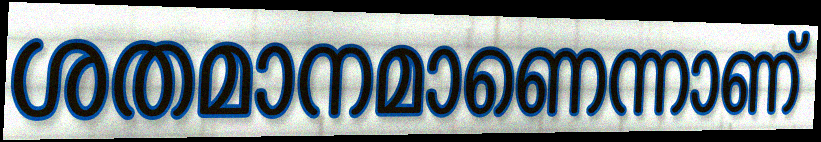
ശതമാനമാണെന്നാണ്